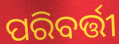
ପରିବର୍ତ୍ତୀ